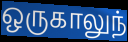
ஒருகாலுந்